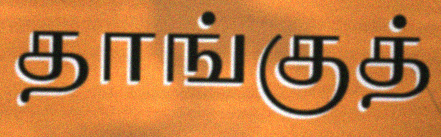
தாங்குத்